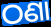
ଠଣା